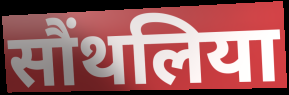
सौंथलिया